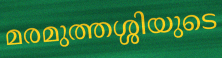
മരമുത്തശ്ശിയുടെ